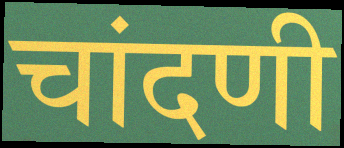
चांदणी